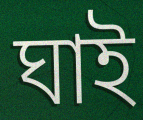
ঘাই